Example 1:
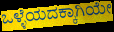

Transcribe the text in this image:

ಒಳ್ಳೆಯದಕ್ಕಾಗಿಯೇ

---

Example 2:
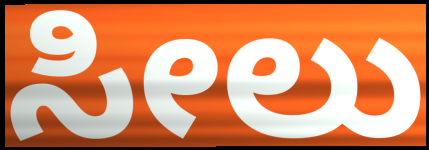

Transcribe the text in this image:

ಸೀಲು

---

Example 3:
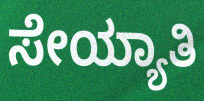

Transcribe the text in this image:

ಸೇಯ್ಯಾತಿ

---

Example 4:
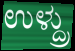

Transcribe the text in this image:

ಉಳ್ದ್ರು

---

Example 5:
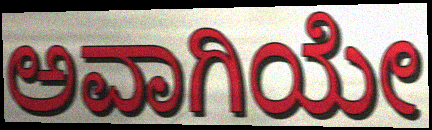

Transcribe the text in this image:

ಅವಾಗಿಯೇ